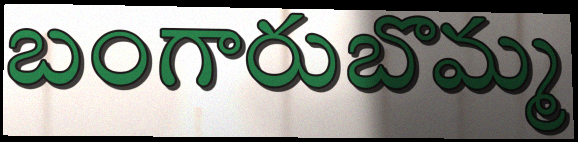
బంగారుబొమ్మ